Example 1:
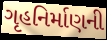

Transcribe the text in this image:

ગૃહનિર્માણની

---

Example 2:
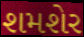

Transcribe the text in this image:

શમશેર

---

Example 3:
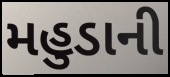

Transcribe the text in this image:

મહુડાની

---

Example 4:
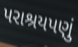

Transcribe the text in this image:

પરાશ્રયપણું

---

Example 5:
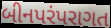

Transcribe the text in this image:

બીનપરંપરાગત